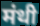
मंथी